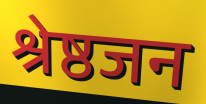
श्रेष्ठजन